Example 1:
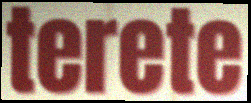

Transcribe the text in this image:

terete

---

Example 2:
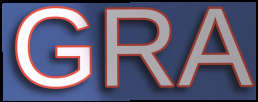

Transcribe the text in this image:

GRA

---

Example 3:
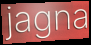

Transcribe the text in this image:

jagna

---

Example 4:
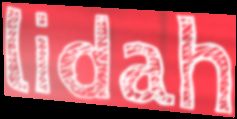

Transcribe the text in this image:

lidah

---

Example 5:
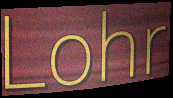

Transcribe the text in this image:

Lohr